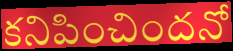
కనిపించిందనో